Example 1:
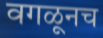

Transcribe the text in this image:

वगळूनच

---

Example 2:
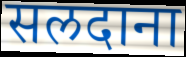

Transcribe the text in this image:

सलदाना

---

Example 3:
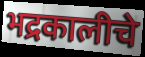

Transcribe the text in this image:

भद्रकालीचे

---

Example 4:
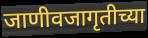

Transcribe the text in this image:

जाणीवजागृतीच्या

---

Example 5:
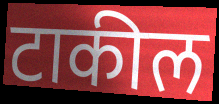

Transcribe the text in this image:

टाकील